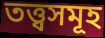
তত্ত্বসমূহ